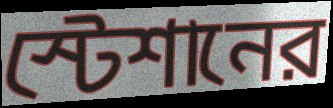
স্টেশানের